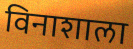
विनाशाला